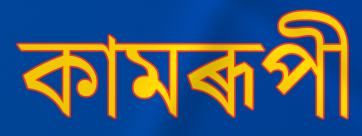
কামৰূপী